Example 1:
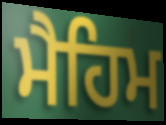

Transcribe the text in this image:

ਮੈਹਿਮ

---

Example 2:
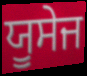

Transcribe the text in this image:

ਯੂਸੇਜ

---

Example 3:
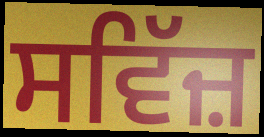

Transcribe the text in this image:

ਸਵਿੱਜ਼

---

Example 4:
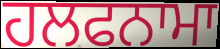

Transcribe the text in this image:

ਹਲਫਨਾਮਾ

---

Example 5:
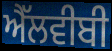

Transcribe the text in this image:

ਐੱਲਵੀਬੀ